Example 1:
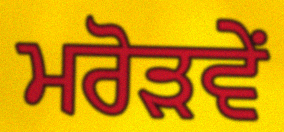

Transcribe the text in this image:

ਮਰੋੜਵੇਂ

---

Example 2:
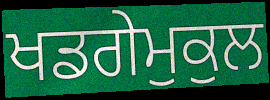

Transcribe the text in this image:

ਖਡਗੇਮੁਕੁਲ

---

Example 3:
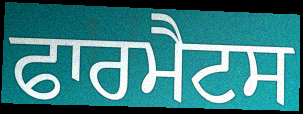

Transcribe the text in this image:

ਫਾਰਮੈਟਸ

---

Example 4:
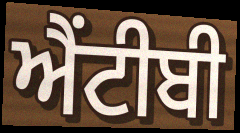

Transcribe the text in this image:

ਐਂਟੀਬੀ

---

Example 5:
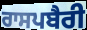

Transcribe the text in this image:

ਰਾਸਪਬੈਰੀ